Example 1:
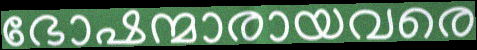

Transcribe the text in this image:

ഭോഷന്മാരായവരെ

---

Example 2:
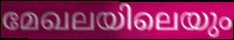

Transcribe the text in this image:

മേഖലയിലെയും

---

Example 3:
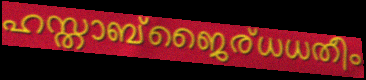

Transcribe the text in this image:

ഹസ്താബ്ജൈര്ധധതീം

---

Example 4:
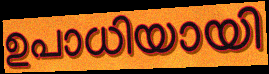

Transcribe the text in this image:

ഉപാധിയായി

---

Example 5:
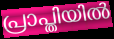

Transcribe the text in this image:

പ്രാപ്തിയിൽ